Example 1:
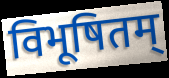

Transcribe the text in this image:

विभूषितम्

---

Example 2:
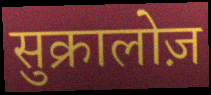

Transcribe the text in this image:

सुक्रालोज़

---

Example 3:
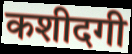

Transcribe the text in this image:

कशीदगी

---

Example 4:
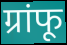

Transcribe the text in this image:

ग्रांफू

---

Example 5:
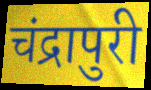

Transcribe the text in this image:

चंद्रापुरी